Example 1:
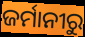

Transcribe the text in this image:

ଜର୍ମାନୀରୁ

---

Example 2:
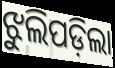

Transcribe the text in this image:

ଝୁଲିପଡ଼ିଲା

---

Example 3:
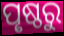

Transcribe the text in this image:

ପୃଷ୍ଠରୁ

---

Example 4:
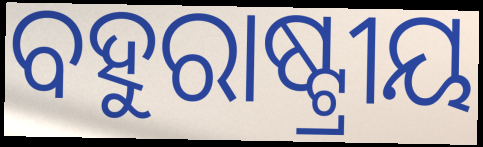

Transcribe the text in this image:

ବହୁରାଷ୍ଟ୍ରୀୟ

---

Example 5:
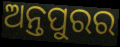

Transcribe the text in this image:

ଅନ୍ତପୁରର